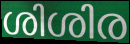
ശിശിര